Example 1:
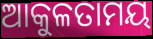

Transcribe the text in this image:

ଆକୁଳତାମୟ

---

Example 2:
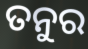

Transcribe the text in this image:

ତନୁର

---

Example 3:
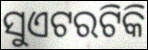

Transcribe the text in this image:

ସୁଏଟରଟିକି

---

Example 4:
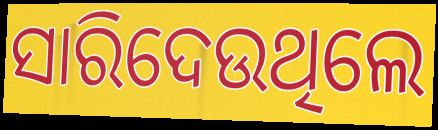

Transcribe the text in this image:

ସାରିଦେଉଥିଲେ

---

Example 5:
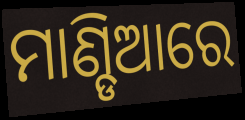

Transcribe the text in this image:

ମାଣ୍ଡିଆରେ